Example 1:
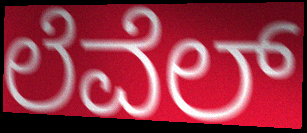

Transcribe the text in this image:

ಲೆವೆಲ್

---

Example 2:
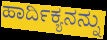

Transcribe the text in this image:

ಹಾರ್ದಿಕ್ಯನನ್ನು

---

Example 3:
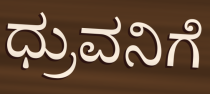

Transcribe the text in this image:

ಧ್ರುವನಿಗೆ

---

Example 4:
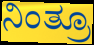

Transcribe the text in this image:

ನಿಂತ್ರೂ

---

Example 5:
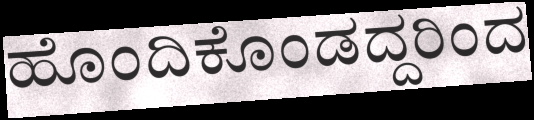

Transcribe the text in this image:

ಹೊಂದಿಕೊಂಡದ್ದರಿಂದ